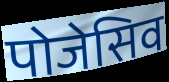
पोजेसिव